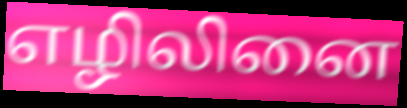
எழிலினை